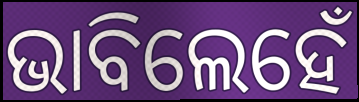
ଭାବିଲେହେଁ